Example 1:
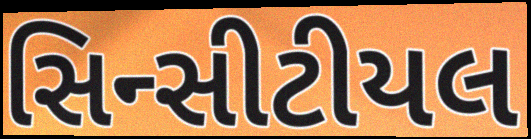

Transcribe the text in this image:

સિન્સીટીયલ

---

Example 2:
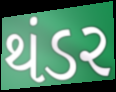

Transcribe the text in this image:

થંડર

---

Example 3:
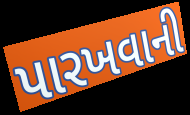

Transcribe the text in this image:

પારખવાની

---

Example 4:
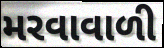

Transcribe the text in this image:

મરવાવાળી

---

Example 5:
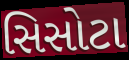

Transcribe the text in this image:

સિસોટા